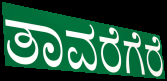
ತಾವರೆಗೆರೆ